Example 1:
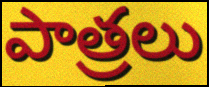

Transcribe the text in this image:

పాత్రలు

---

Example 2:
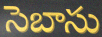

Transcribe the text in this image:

సెబాసు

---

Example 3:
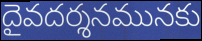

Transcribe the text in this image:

దైవదర్శనమునకు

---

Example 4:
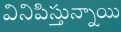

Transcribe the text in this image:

వినిపిస్తున్నాయి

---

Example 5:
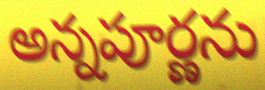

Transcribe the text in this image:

అన్నపూర్ణను